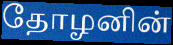
தோழனின்